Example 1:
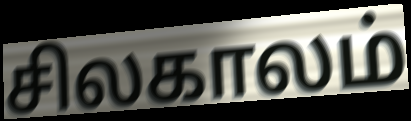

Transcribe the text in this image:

சிலகாலம்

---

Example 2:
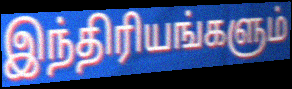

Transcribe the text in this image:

இந்திரியங்களும்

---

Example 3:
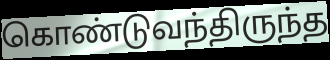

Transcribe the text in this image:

கொண்டுவந்திருந்த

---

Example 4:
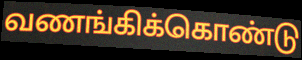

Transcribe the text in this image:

வணங்கிக்கொண்டு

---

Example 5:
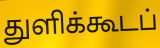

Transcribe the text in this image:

துளிக்கூடப்